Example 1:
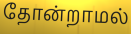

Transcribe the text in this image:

தோன்றாமல்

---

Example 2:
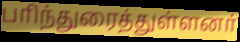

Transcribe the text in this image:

பரிந்துரைத்துள்ளனர்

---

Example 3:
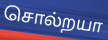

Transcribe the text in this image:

சொல்றயா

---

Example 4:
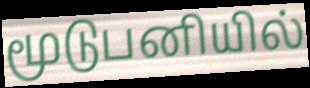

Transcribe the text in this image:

மூடுபனியில்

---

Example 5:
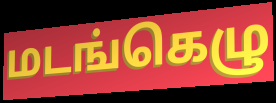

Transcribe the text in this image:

மடங்கெழு